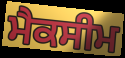
ਮੈਕਸੀਮ